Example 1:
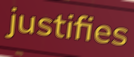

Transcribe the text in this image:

justifies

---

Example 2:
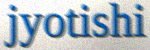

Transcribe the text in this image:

jyotishi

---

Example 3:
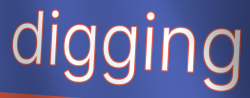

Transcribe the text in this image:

digging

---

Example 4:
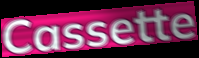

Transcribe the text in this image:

Cassette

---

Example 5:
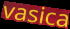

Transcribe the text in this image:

vasica